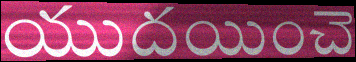
యుదయించె